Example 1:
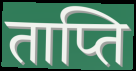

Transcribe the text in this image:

ताप्ति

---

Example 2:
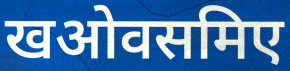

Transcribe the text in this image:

खओवसमिए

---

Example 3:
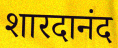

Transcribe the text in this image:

शारदानंद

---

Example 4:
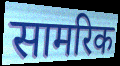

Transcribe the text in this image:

सामरिक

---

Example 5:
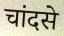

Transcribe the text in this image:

चांदसे